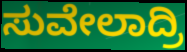
ಸುವೇಲಾದ್ರಿ